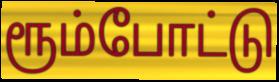
ரூம்போட்டு